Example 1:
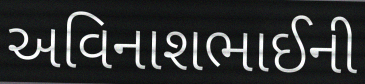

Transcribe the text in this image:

અવિનાશભાઈની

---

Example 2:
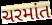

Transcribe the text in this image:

ચરમાંત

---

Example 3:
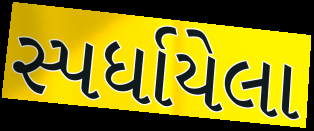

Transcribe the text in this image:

સ્પર્ધાયેલા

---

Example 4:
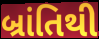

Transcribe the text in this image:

બ્રાંતિથી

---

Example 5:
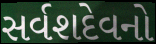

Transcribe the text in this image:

સર્વશદેવનો